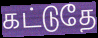
கட்டுதே